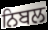
ਨਿਬਲ